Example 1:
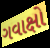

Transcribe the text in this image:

ગવાક્ષો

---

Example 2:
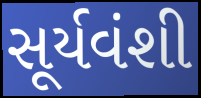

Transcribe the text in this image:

સૂર્યવંશી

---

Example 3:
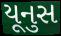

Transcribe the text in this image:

યૂનુસ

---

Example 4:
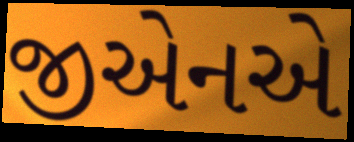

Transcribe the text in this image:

જીએનએ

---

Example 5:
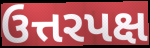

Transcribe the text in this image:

ઉત્તરપક્ષ